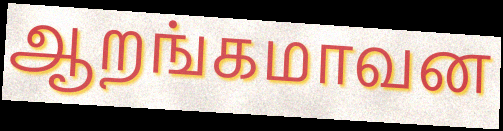
ஆறங்கமாவன